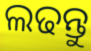
ଲଢନ୍ତୁ